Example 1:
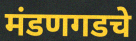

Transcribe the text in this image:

मंडणगडचे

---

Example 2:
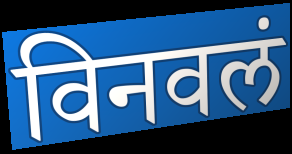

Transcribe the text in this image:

विनवलं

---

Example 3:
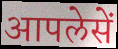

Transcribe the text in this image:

आपलेसें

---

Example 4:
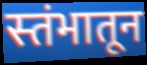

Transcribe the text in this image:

स्तंभातून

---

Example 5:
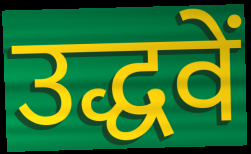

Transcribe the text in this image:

उद्धवें